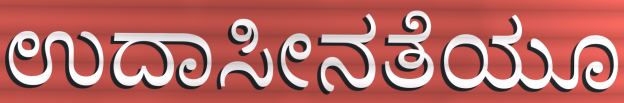
ಉದಾಸೀನತೆಯೂ